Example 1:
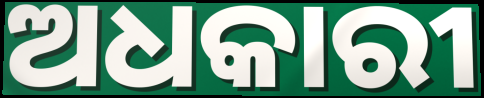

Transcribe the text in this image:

ଅଧକାରୀ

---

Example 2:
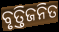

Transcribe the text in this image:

ବୃତ୍ତିଜନିତ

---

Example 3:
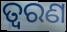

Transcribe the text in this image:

ତ୍ୱରଣ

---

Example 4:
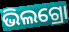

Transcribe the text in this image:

ଭିଲଗ୍ରୋ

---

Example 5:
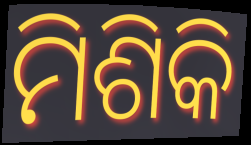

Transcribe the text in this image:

ମିଶିକି